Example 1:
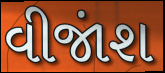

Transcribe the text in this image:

વીજાંશ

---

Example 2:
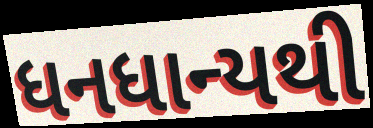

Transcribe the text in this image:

ધનધાન્યથી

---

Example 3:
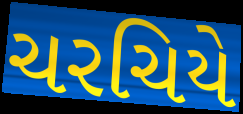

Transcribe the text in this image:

ચરચિયે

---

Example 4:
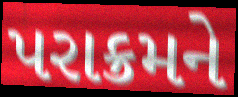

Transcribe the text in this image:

પરાક્રમને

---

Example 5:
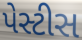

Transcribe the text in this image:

પેસ્ટીસ